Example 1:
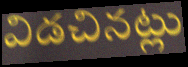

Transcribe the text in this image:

విడచినట్లు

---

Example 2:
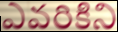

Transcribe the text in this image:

ఎవరికిని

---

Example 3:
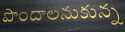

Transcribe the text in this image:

పొందాలనుకున్న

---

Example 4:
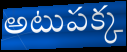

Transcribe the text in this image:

అటుపక్క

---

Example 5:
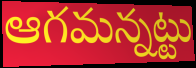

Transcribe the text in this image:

ఆగమన్నట్టు